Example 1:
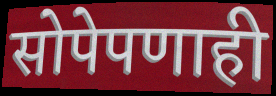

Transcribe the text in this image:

सोपेपणाही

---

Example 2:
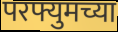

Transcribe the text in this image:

परफ्युमच्या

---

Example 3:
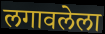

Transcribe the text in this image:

लगावलेला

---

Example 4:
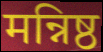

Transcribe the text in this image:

मन्निष्ठ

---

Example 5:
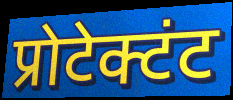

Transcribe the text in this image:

प्रोटेक्टंट